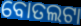
ବୋତଲଟା